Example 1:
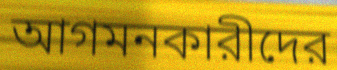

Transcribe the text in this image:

আগমনকারীদের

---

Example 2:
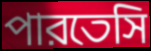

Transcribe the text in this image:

পারতেসি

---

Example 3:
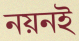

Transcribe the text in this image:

নয়নই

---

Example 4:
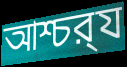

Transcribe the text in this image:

আশ্চর্‍য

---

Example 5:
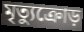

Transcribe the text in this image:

মৃত্যুক্রোড়